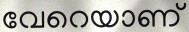
വേറെയാണ്